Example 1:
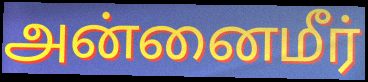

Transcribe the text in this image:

அன்னைமீர்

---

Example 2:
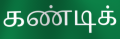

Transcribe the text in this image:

கண்டிக்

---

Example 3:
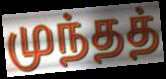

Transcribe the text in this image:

முந்தத்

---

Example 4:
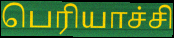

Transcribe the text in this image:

பெரியாச்சி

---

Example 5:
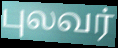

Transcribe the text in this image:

புலவர்